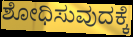
ಶೋಧಿಸುವುದಕ್ಕೆ